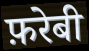
फ़रेबी